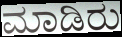
ಮಾಡಿರು